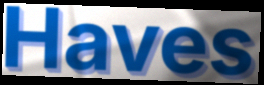
Haves